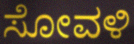
ಸೋವಳಿ